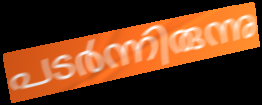
പടർന്നിരുന്നു